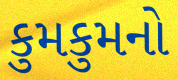
કુમકુમનો